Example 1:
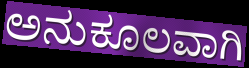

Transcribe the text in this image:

ಅನುಕೂಲವಾಗಿ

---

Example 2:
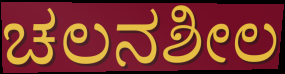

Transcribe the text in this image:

ಚಲನಶೀಲ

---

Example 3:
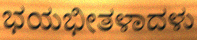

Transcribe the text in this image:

ಭಯಭೀತಳಾದಳು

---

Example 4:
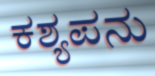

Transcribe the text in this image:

ಕಶ್ಯಪನು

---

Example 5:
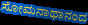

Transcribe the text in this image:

ಸೋಮನಾಥಾನಂದ